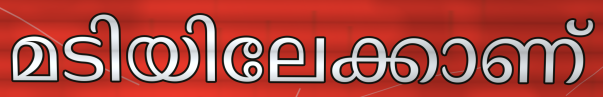
മടിയിലേക്കാണ്